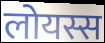
लोयस्स